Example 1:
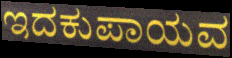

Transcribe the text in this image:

ಇದಕುಪಾಯವ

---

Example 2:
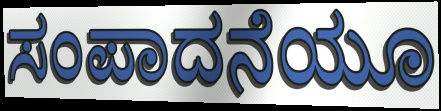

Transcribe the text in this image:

ಸಂಪಾದನೆಯೂ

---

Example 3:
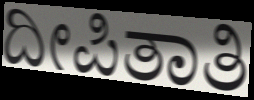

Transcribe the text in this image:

ದೀಪಿತಾತಿ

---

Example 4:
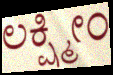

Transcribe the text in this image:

ಲಕ್ಷ್ಮೀಂ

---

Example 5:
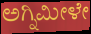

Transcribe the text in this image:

ಅಗ್ನಿಮೀಳೇ